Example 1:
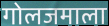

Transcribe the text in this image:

गोलजमाला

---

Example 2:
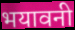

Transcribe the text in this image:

भयावनी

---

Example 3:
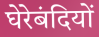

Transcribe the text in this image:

घेरेबंदियों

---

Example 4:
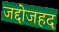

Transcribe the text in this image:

जद्दोजहद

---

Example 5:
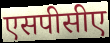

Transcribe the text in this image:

एसपीसीए